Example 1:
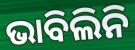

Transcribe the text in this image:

ଭାବିଲିନି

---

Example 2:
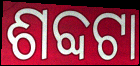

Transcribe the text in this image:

ଶବ୍ଦଟା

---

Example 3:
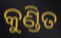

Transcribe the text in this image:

କୁଣ୍ଡିତ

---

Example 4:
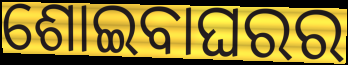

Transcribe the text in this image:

ଶୋଇବାଘରର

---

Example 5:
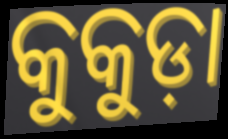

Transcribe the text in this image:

କୁକୁଡ଼ା